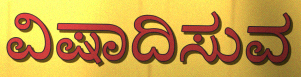
ವಿಷಾದಿಸುವ